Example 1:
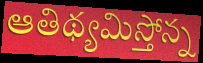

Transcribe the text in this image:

ఆతిథ్యమిస్తోన్న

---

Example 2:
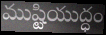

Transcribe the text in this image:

ముష్టియుద్ధం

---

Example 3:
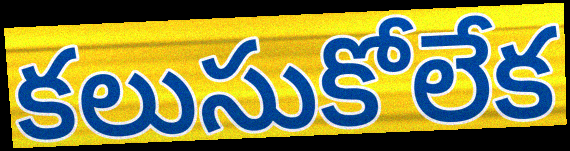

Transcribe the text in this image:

కలుసుకోలేక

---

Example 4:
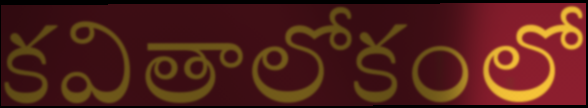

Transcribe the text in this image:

కవితాలోకంలో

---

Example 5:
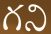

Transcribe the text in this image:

గని